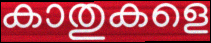
കാതുകളെ